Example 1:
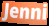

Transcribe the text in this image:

Jenni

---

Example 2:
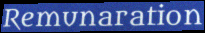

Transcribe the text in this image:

Remunaration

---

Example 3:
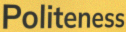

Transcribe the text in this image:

Politeness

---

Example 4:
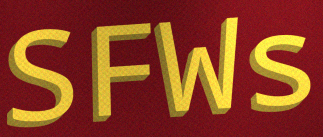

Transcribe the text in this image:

SFWs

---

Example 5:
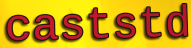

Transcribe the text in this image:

caststd